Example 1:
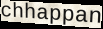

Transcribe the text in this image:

chhappan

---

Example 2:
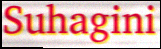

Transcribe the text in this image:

Suhagini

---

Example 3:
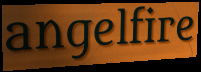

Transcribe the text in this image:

angelfire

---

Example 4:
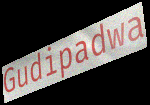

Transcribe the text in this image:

Gudipadwa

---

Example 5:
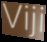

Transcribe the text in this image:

Viji